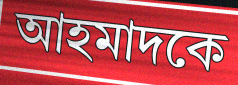
আহমাদকে